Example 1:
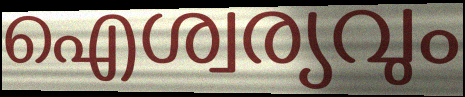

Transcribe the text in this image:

ഐശ്വര്യവും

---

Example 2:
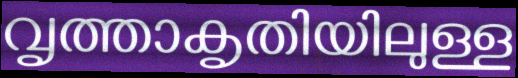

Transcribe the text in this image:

വൃത്താകൃതിയിലുള്ള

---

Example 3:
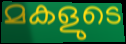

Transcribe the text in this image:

മകളുടെ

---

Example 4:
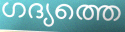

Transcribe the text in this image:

ഗദ്യത്തെ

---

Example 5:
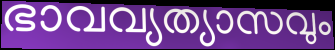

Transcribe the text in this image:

ഭാവവ്യത്യാസവും